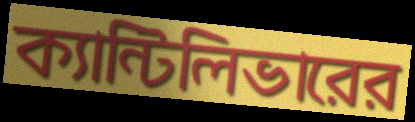
ক্যান্টিলিভারের